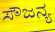
ಸೌಜನ್ಯ